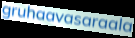
gruhaavasaraala